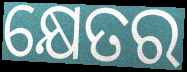
କ୍ଷେତର